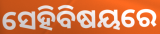
ସେହିବିଷୟରେ